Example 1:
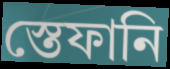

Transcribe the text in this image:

স্তেফানি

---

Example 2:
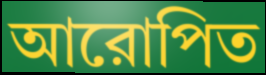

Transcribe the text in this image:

আরোপিত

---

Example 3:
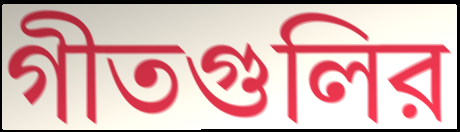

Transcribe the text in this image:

গীতগুলির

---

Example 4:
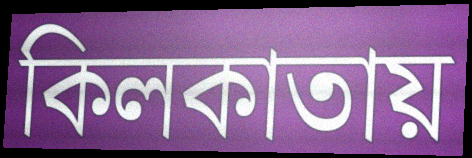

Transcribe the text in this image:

কিলকাতায়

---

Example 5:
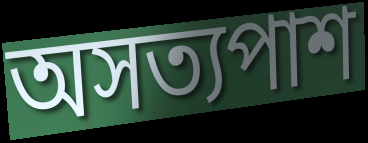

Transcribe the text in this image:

অসত্যপাশ